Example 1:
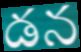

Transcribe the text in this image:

డన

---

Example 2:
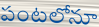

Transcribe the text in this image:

పంటలోనూ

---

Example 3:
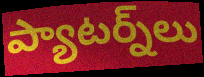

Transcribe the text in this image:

ప్యాటర్న్‌లు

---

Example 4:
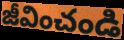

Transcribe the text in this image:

జీవించండి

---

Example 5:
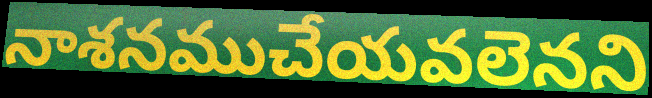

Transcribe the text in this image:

నాశనముచేయవలెనని